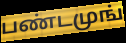
பண்டமுங்